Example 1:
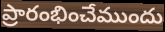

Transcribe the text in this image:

ప్రారంభించేముందు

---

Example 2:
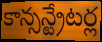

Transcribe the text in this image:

కాన్సన్ట్రేటర్ల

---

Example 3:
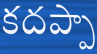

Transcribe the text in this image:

కదప్పా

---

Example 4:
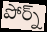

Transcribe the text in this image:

పోర్న్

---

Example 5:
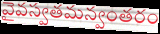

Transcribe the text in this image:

వైవస్వతమన్వంతరం